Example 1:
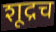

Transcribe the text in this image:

शूद्रच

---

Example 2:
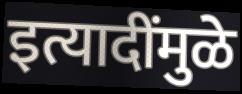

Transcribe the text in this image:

इत्यादींमुळे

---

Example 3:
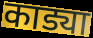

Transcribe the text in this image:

काड्या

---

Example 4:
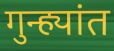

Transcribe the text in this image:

गुन्ह्यांत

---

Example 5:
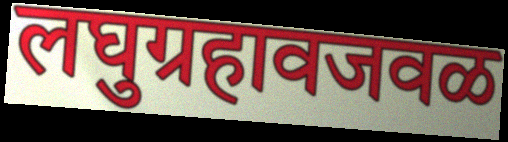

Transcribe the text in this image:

लघुग्रहावजवळ